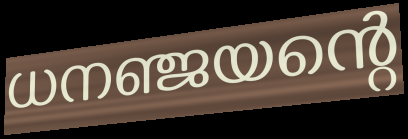
ധനഞ്ജയന്റെ